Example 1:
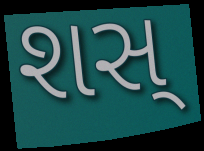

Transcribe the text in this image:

શસ્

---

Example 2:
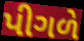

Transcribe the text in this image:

પીગળે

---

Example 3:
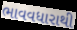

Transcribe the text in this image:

ભાવવધારાથી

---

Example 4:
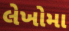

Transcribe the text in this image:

લેખોમા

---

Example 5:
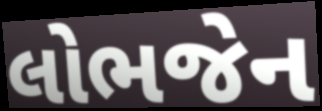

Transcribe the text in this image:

લોભજેન